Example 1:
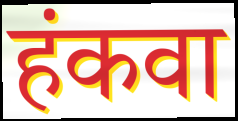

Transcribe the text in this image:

हंकवा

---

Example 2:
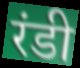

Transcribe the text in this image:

रंडी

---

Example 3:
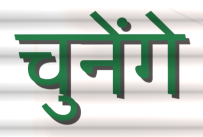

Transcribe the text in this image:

चुनेंगे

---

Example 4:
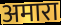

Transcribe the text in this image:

अमारा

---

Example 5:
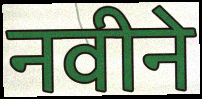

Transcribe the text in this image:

नवीने